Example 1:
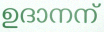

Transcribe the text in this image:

ഉദാനന്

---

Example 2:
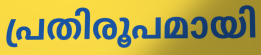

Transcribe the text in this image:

പ്രതിരൂപമായി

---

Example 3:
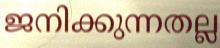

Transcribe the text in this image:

ജനിക്കുന്നതല്ല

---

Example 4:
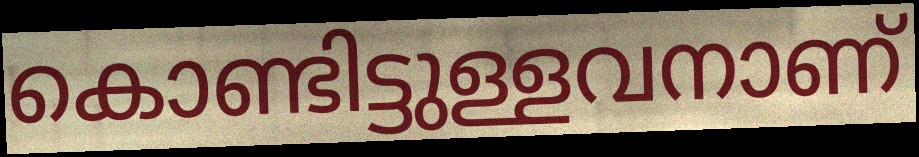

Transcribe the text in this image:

കൊണ്ടിട്ടുള്ളവനാണ്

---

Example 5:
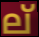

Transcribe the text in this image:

ല്